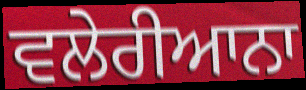
ਵਲੇਰੀਆਨਾ